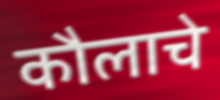
कौलाचे